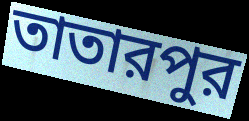
তাতারপুর